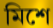
মিশে